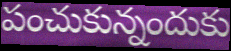
పంచుకున్నందుకు